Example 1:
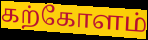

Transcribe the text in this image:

கற்கோளம்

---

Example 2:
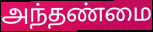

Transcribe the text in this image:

அந்தண்மை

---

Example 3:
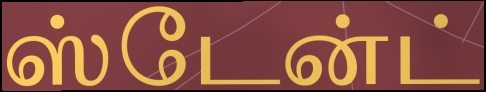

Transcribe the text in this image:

ஸ்டேன்ட்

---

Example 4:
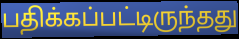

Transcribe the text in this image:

பதிக்கப்பட்டிருந்தது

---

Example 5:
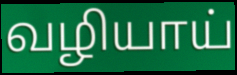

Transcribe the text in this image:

வழியாய்